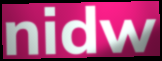
nidw